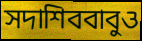
সদাশিববাবুও